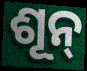
ଶୂନ୍